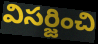
విసర్జించి